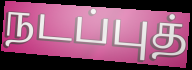
நடப்புத்